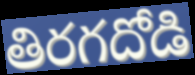
తిరగదోడి